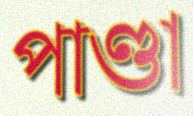
পাণ্ডা